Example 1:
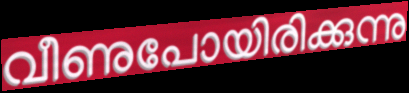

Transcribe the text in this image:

വീണുപോയിരിക്കുന്നു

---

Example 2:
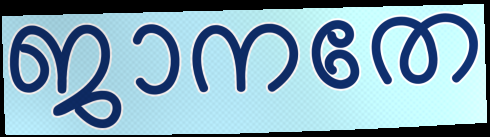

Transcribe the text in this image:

ജാനതേ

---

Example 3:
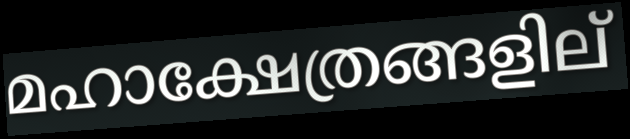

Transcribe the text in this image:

മഹാക്ഷേത്രങ്ങളില്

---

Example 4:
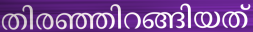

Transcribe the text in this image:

തിരഞ്ഞിറങ്ങിയത്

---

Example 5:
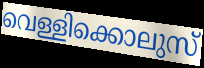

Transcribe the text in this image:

വെള്ളിക്കൊലുസ്